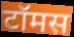
टॉमस